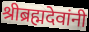
श्रीब्रह्मदेवांनी